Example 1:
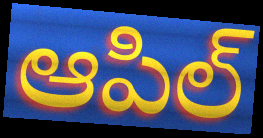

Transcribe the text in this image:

ఆపిల్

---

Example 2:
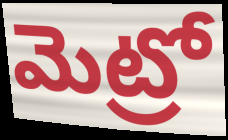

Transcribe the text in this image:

మెట్రో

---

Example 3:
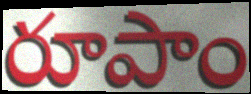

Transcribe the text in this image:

రూపాం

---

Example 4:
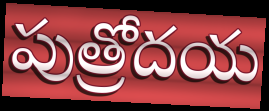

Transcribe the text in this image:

పుత్రోదయ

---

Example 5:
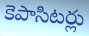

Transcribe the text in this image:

కెపాసిటర్లు